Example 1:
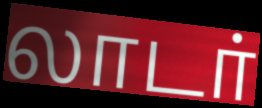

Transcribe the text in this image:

லாடர்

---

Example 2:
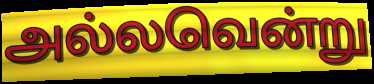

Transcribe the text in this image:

அல்லவென்று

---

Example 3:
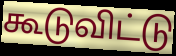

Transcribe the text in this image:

கூடுவிட்டு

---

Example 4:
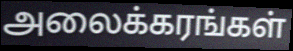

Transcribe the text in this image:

அலைக்கரங்கள்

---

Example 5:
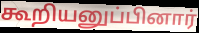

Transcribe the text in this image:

கூறியனுப்பினார்